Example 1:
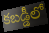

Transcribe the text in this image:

కబడ్డీలో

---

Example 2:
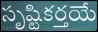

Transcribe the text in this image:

సృష్టికర్తయే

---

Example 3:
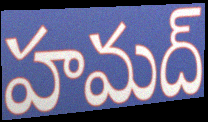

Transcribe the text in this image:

హమద్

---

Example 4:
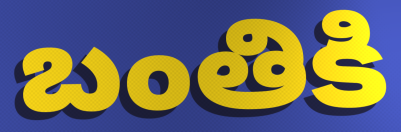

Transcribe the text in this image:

బంతికి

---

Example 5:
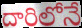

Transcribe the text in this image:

దారిలోనే